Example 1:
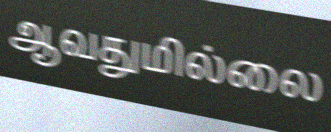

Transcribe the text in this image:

ஆவதுமில்லை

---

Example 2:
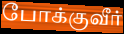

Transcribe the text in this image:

போக்குவீர்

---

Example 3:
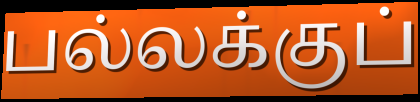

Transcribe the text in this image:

பல்லக்குப்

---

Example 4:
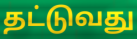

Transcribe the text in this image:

தட்டுவது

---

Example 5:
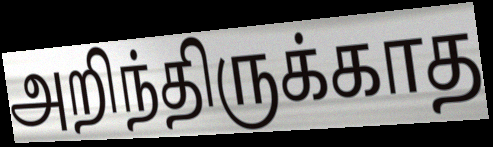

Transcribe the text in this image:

அறிந்திருக்காத